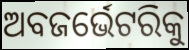
ଅବଜର୍ଭେଟରିକୁ